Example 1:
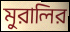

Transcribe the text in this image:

মুরালির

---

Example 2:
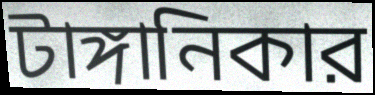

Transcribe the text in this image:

টাঙ্গানিকার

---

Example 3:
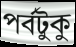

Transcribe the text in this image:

পর্বটুকু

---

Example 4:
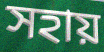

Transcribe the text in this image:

সহায়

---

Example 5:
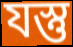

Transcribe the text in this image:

যস্তু